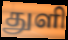
துளி